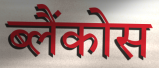
ब्लैंकोस